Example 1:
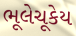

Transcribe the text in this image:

ભૂલેચૂકેય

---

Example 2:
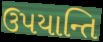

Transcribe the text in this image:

ઉપયાન્તિ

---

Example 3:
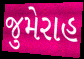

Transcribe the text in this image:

જુમેરાહ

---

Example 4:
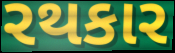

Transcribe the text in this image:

રથકાર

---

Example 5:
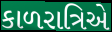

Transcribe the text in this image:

કાળરાત્રિએ